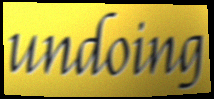
undoing